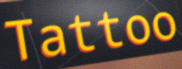
Tattoo